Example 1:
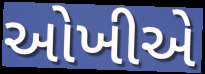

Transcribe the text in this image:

ઓખીએ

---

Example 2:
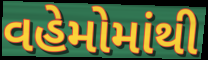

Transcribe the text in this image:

વહેમોમાંથી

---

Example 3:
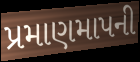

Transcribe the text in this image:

પ્રમાણમાપની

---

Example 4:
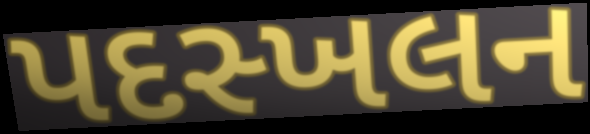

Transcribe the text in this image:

પદસ્ખલન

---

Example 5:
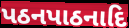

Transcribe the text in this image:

પઠનપાઠનાદિ